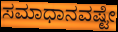
ಸಮಾಧಾನವಷ್ಟೇ